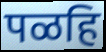
पळहि